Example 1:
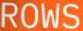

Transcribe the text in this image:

ROWS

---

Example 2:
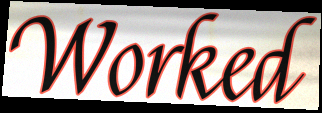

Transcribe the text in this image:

Worked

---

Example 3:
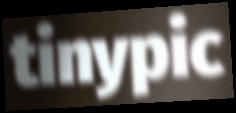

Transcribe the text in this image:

tinypic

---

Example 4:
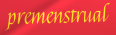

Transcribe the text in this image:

premenstrual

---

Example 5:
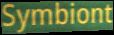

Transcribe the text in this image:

Symbiont